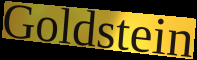
Goldstein